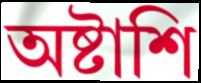
অষ্টাশি